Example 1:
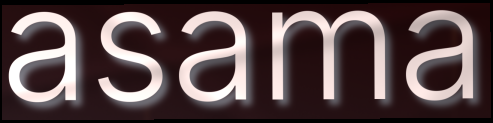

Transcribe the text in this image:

asama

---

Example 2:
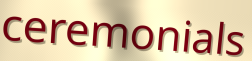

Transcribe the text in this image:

ceremonials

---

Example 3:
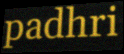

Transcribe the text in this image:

padhri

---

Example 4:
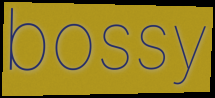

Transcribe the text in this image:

bossy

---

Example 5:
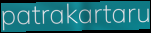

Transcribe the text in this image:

patrakartaru